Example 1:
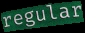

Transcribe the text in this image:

regular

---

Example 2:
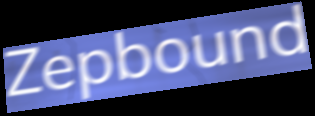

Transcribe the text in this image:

Zepbound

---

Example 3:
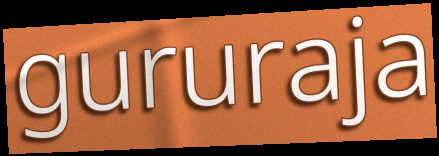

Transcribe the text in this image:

gururaja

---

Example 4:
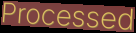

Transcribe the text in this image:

Processed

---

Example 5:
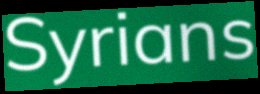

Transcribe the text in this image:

Syrians